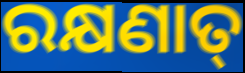
ରକ୍ଷଣାତ୍